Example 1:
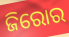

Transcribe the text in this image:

ଜିରୋର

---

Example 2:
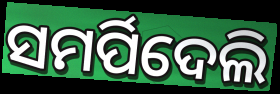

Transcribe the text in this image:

ସମର୍ପିଦେଲି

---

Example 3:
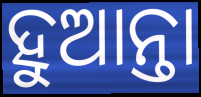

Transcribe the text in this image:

ହୁଆନ୍ତା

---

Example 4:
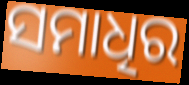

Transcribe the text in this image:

ସମାଧିର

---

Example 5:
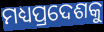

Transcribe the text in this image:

ମଧ୍ୟପ୍ରଦେଶକୁ